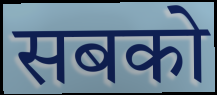
सबको